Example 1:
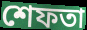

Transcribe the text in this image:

শেফতা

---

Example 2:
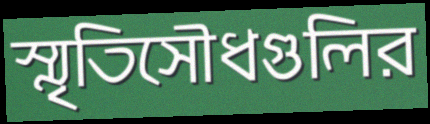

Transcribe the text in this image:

স্মৃতিসৌধগুলির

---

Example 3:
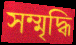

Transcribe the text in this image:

সম্মৃদ্ধি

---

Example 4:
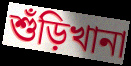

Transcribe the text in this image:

শুঁড়িখানা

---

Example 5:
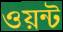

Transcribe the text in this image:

ওয়ন্ট